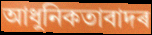
আধুনিকতাবাদৰ